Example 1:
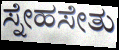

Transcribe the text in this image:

ಸ್ನೇಹಸೇತು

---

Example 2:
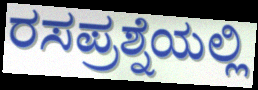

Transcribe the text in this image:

ರಸಪ್ರಶ್ನೆಯಲ್ಲಿ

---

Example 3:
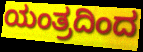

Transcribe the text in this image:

ಯಂತ್ರದಿಂದ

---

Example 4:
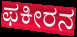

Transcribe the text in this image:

ಫಕೀರನ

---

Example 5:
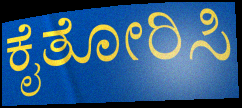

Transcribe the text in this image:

ಕೈತೋರಿಸಿ